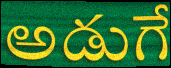
అడుగే